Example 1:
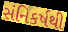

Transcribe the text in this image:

સંનિકર્ષથી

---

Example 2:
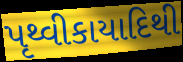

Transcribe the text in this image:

પૃથ્વીકાયાદિથી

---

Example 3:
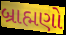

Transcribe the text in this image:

બ્રાહ્મણો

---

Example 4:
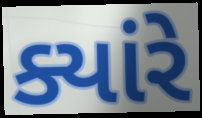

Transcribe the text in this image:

ક્યાંરે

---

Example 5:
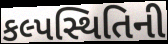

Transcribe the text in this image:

કલ્પસ્થિતિની